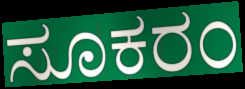
ಸೂಕರಂ